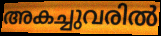
അകച്ചുവരിൽ